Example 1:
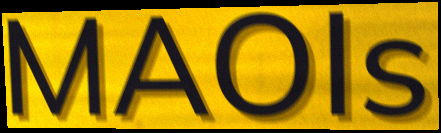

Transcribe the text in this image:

MAOIs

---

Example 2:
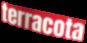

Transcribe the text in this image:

terracota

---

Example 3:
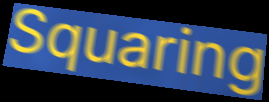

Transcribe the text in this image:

Squaring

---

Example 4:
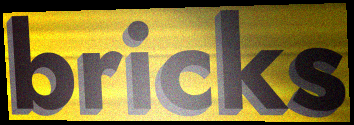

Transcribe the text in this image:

bricks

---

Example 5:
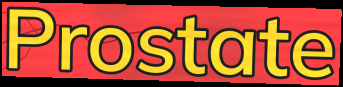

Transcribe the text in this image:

Prostate